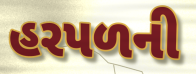
હરપળની